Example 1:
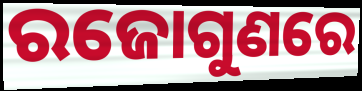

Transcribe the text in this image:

ରଜୋଗୁଣରେ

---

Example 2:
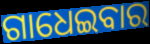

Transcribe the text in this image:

ଗାଧେଇବାର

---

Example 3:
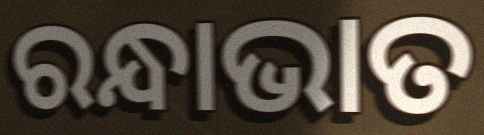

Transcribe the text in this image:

ରନ୍ଧାଭାତ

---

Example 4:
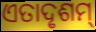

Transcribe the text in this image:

ଏତାଦୃଶମ୍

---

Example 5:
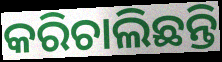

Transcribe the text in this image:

କରିଚାଲିଛନ୍ତି